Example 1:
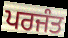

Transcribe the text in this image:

ਪਰਜੰਤ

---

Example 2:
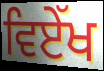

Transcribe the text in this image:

ਵਿਏੱਖ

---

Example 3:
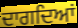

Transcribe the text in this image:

ਦਾਗਦਿਆਂ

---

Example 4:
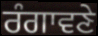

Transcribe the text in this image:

ਰੰਗਾਵਣੇ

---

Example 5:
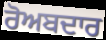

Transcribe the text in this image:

ਰੋਅਬਦਾਰ